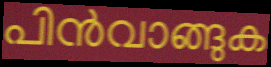
പിൻവാങ്ങുക